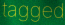
tagged